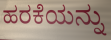
ಹರಕೆಯನ್ನು